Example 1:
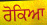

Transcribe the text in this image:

ਰੋਕਿਆ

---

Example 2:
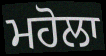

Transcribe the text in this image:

ਮਹੋਲਾ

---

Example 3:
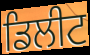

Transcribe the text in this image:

ਡਿਲੀਟ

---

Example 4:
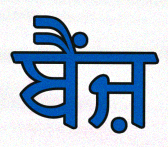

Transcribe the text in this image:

ਬੈਂਜ਼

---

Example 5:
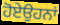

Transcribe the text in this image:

ਹੋਏਉਹਨਾਂ